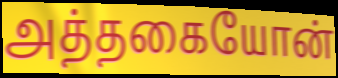
அத்தகையோன்